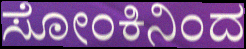
ಸೋಂಕಿನಿಂದ